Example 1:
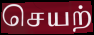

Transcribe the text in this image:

செயற்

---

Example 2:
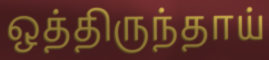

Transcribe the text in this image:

ஒத்திருந்தாய்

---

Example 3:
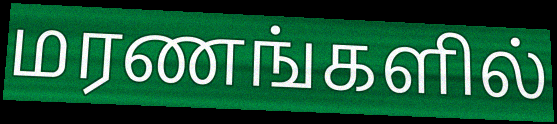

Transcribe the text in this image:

மரணங்களில்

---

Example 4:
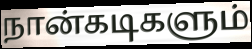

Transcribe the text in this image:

நான்கடிகளும்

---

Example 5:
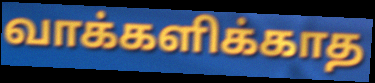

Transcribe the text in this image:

வாக்களிக்காத